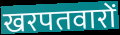
खरपतवारों